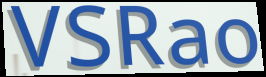
VSRao